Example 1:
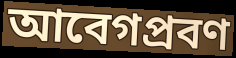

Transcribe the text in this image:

আবেগপ্রবণ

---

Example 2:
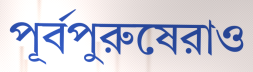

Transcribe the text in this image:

পূর্বপুরুষেরাও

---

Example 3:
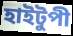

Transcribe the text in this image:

হাইটুপী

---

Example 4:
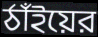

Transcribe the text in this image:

ঠাঁইয়ের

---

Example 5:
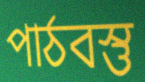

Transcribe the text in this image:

পাঠবস্তু